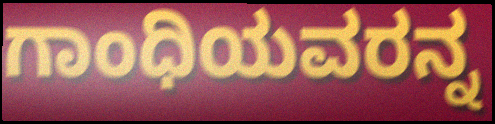
ಗಾಂಧಿಯವರನ್ನ